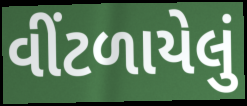
વીંટળાયેલું